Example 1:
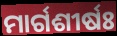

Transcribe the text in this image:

ମାର୍ଗଶୀର୍ଷଃ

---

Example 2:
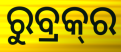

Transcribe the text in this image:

ରୁବ୍ରକ୍‍ର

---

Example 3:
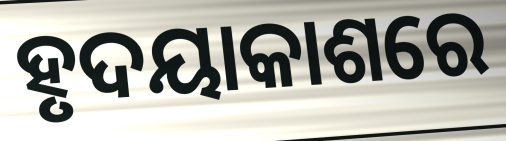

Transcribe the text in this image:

ହୃଦୟାକାଶରେ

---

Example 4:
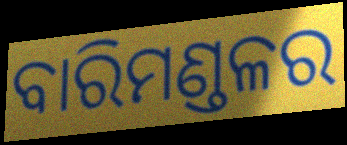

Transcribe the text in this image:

ବାରିମଣ୍ଡଳର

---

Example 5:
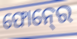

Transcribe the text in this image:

ଫୋନ୍‍ରେ